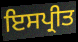
ਇਸਪ੍ਰੀਤ